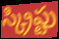
స్క్రిప్టు